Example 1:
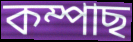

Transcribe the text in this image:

কম্পাছ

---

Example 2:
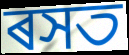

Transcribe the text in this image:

ৰসত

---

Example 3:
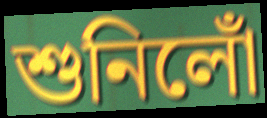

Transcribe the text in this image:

শুনিলোঁ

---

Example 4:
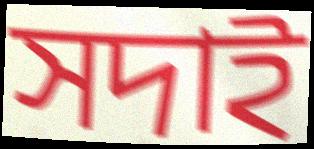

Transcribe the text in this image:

সদাই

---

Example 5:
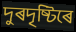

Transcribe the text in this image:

দুৰদৃষ্টিৰে